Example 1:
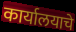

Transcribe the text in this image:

कार्यालयाचे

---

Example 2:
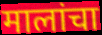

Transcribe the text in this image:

मालांचा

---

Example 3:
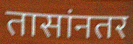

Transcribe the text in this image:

तासांनतर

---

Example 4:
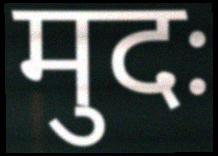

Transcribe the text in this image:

मुदः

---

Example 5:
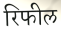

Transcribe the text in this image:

रिफील